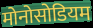
मोनोसोडियम